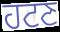
ਹਟਣ